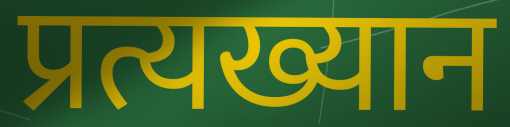
प्रत्यख्यान